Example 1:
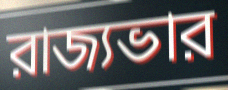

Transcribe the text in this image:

রাজ্যভার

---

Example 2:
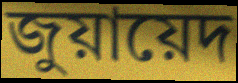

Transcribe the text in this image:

জুয়ায়েদ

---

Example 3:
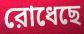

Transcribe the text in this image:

রোধেছে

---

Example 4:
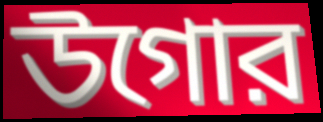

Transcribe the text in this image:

উগোর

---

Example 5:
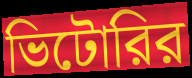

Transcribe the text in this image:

ভিটোরির